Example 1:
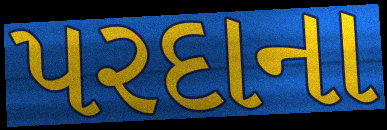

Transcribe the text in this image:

પરદાના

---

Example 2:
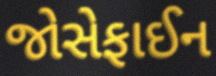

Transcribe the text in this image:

જોસેફાઈન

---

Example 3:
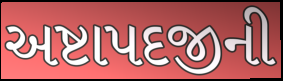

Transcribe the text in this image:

અષ્ટાપદજીની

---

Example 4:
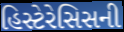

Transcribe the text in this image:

હિસ્ટેરેસિસની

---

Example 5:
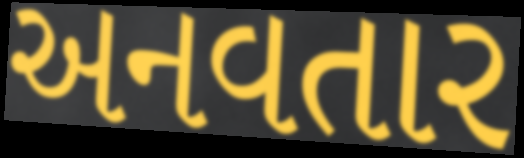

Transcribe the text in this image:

અનવતાર